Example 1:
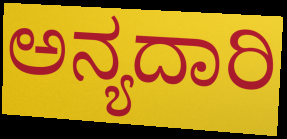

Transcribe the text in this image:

ಅನ್ಯದಾರಿ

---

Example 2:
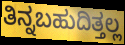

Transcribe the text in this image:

ತಿನ್ನಬಹುದಿತ್ತಲ್ಲ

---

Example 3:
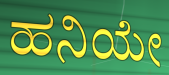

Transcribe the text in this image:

ಹನಿಯೇ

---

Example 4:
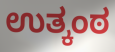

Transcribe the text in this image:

ಉತ್ಕಂಠ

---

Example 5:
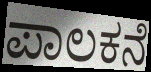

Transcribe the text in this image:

ಪಾಲಕನೆ